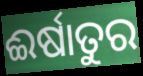
ଈର୍ଷାତୁର